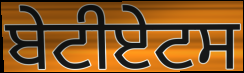
ਬੇਟੀਏਟਸ